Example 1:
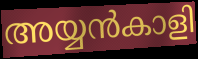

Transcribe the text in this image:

അയ്യൻകാളി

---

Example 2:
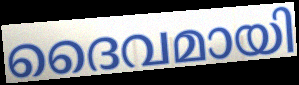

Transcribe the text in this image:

ദൈവമായി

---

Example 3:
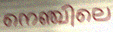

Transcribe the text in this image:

നെഞ്ചിലെ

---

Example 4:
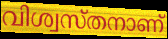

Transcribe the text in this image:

വിശ്വസ്തനാണ്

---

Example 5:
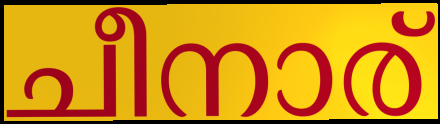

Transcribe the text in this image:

ചീനാര്